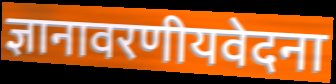
ज्ञानावरणीयवेदना